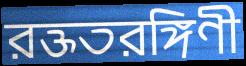
রক্ততরঙ্গিণী